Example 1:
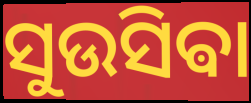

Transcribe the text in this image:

ସୁଉସିଵା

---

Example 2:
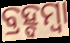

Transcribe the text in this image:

ବ୍ରହ୍ଦମ୍ବା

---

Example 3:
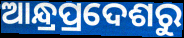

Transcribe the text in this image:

ଆନ୍ଧ୍ରପ୍ରଦେଶରୁ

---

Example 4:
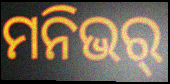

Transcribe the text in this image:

ମନିଭର୍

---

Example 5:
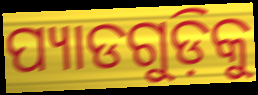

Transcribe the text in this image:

ପ୍ୟାଡଗୁଡ଼ିକୁ